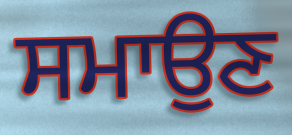
ਸਮਾਉਣ